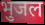
भुजल